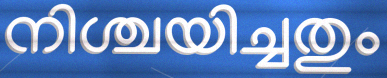
നിശ്ചയിച്ചതും